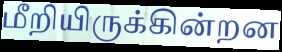
மீறியிருக்கின்றன